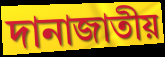
দানাজাতীয়